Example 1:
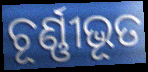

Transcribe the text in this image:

ଚୂର୍ଣ୍ଣୀଭୂତ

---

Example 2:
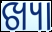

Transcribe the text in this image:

ଖ୍ୟା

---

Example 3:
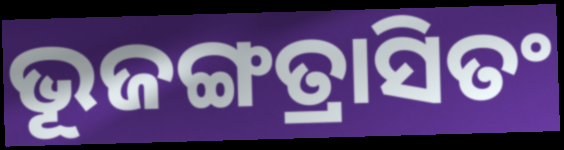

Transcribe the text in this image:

ଭୂଜଙ୍ଗତ୍ରାସିତଂ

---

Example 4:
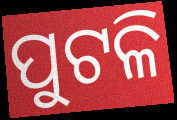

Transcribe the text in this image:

ପୁଟଳି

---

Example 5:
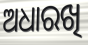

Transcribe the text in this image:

ଅଧାରଖି